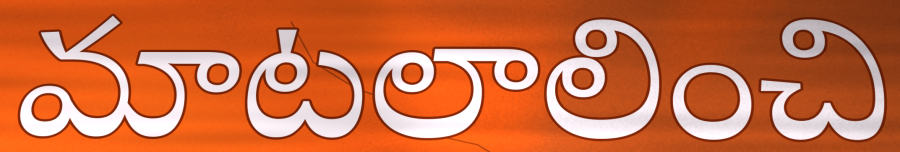
మాటలాలించి